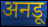
अनडू